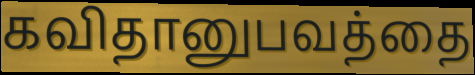
கவிதானுபவத்தை